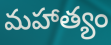
మహాత్యం